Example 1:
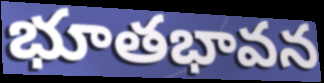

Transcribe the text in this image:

భూతభావన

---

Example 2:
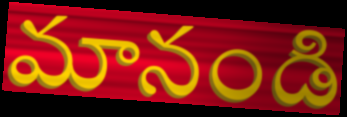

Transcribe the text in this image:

మానండి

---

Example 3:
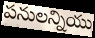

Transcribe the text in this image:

పనులన్నియు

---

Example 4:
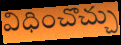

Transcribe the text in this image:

విధించొచ్చు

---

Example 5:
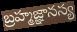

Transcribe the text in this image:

బ్రహ్మజ్ఞానస్య